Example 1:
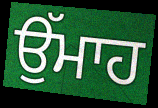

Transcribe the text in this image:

ਉੱਮਾਹ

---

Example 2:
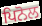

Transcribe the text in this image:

ਪਿਨੋਲ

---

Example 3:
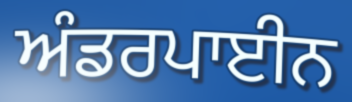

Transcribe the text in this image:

ਅੰਡਰਪਾਈਨ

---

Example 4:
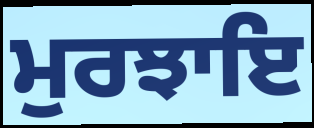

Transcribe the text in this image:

ਮੁਰਝਾਇ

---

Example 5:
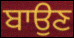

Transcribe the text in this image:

ਬਾਉਣ